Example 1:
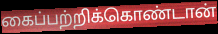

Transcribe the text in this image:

கைப்பற்றிக்கொண்டான்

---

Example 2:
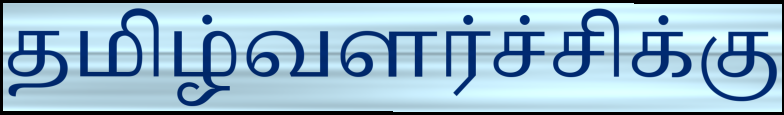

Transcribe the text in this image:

தமிழ்வளர்ச்சிக்கு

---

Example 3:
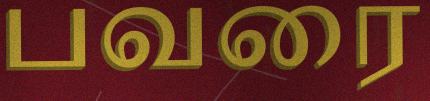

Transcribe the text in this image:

பவரை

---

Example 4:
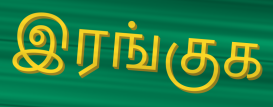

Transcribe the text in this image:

இரங்குக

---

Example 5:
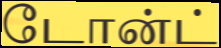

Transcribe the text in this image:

டோன்ட்